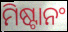
ମିଷ୍ଟାନଂ